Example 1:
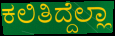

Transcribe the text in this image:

ಕಲಿತಿದ್ದೆಲ್ಲಾ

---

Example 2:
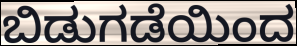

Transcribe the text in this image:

ಬಿಡುಗಡೆಯಿಂದ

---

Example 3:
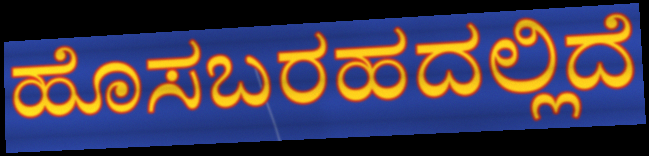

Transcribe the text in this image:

ಹೊಸಬರಹದಲ್ಲಿದೆ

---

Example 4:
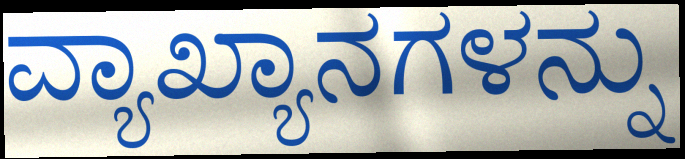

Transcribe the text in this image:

ವ್ಯಾಖ್ಯಾನಗಳನ್ನು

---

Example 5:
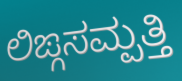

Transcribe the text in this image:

ಲಿಙ್ಗಸಮ್ಪತ್ತಿ